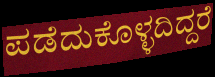
ಪಡೆದುಕೊಳ್ಳದಿದ್ದರೆ